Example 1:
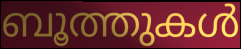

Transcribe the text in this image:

ബൂത്തുകൾ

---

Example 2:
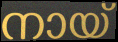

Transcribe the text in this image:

നായ്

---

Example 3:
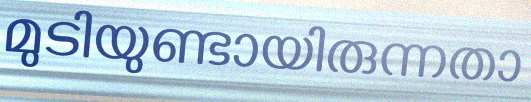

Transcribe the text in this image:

മുടിയുണ്ടായിരുന്നതാ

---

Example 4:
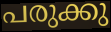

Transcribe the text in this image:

പരുക്കു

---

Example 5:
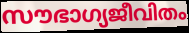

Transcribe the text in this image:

സൗഭാഗ്യജീവിതം